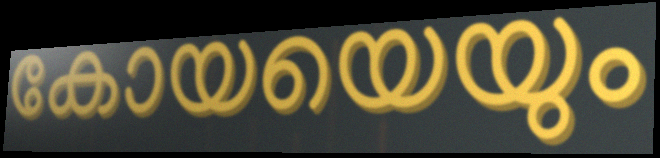
കോയയെയും